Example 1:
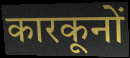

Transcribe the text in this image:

कारकूनों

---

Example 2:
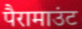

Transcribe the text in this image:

पैरामाउंट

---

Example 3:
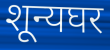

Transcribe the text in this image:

शून्यघर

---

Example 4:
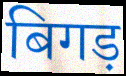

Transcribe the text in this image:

बिगड़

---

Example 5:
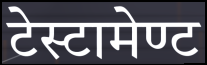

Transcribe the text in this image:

टेस्टामेण्ट